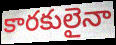
కారకులైనా